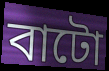
বাটো